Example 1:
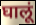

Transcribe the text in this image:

घालूं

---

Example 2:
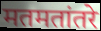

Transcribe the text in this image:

मतमतांतरे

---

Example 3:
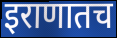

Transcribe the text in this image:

इराणातच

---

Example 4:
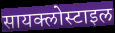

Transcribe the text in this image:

सायक्लोस्टाइल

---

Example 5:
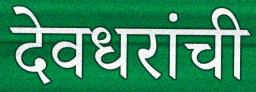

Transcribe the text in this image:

देवधरांची